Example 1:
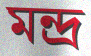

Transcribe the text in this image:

মন্দ্র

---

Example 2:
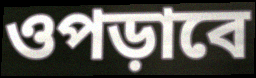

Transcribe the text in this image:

ওপড়াবে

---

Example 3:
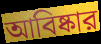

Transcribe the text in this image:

আবিষ্কার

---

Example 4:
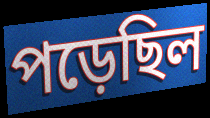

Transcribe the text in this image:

পড়েছিল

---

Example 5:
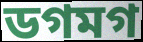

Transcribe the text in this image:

ডগমগ